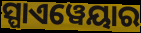
ସ୍ପାଏୱେୟାର